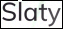
Slaty